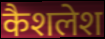
कैशलेश